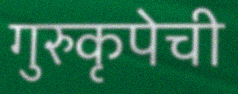
गुरुकृपेची